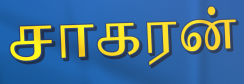
சாகரன்